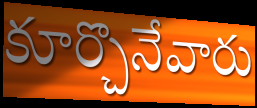
కూర్చొనేవారు